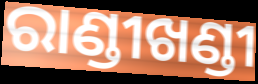
ରାଣ୍ଡୀଖଣ୍ଡୀ